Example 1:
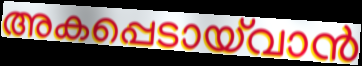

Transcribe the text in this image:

അകപ്പെടായ്‌വാൻ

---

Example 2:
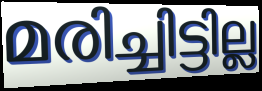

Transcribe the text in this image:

മരിച്ചിട്ടില്ല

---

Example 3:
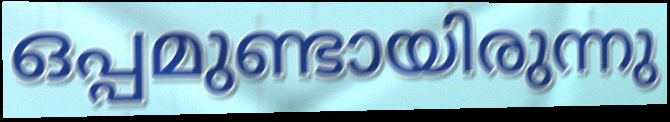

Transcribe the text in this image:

ഒപ്പമുണ്ടായിരുന്നു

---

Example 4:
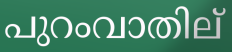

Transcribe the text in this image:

പുറംവാതില്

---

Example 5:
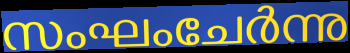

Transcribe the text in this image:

സംഘംചേർന്നു